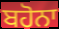
ਬਹੋਨਾ